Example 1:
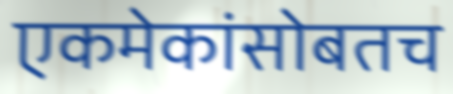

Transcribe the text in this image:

एकमेकांसोबतच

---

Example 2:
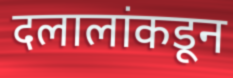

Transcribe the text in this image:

दलालांकडून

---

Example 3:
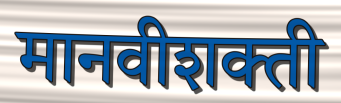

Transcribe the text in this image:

मानवीशक्ती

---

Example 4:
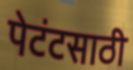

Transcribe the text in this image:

पेटंटसाठी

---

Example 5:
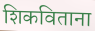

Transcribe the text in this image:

शिकविताना